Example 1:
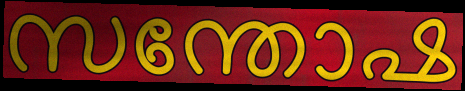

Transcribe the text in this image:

സന്തോഷ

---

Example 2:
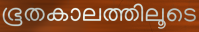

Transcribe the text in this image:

ഭൂതകാലത്തിലൂടെ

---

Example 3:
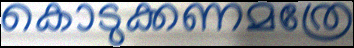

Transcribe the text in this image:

കൊടുക്കണമത്രേ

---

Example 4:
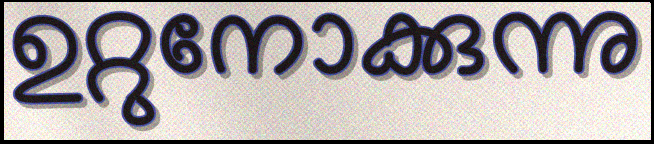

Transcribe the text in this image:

ഉറ്റുനോക്കുന്നു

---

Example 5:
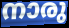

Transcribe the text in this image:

നാരു